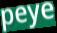
peye